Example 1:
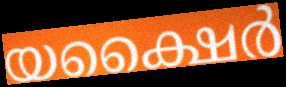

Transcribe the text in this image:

യക്ഷൈർ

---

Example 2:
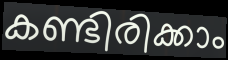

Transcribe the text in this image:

കണ്ടിരിക്കാം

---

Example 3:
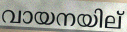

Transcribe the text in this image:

വായനയില്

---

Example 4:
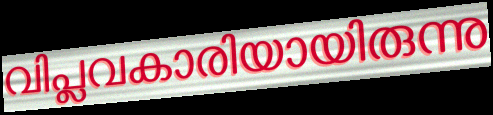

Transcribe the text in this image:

വിപ്ലവകാരിയായിരുന്നു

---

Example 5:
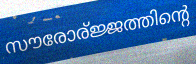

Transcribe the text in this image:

സൗരോര്ജ്ജത്തിന്റെ